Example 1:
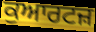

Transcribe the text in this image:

ਕੁਆਰਟਜ਼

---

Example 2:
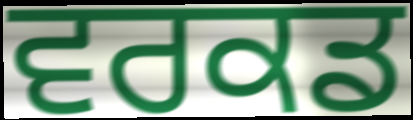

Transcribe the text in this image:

ਵਰਕਡ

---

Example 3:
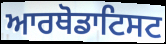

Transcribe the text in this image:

ਆਰਥੋਡਾਟਿਸਟ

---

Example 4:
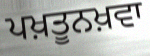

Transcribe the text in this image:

ਪਖ਼ਤੂਨਖ਼ਵਾ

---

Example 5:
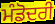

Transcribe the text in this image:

ਮੰਡੋਦਰੀ